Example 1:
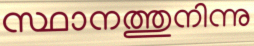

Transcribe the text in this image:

സ്ഥാനത്തുനിന്നു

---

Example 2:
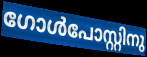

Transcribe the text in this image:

ഗോൾപോസ്റ്റിനു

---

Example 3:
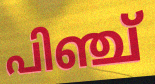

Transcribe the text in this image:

പിഞ്ച്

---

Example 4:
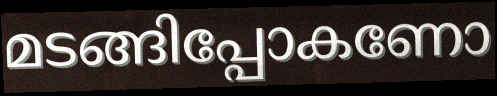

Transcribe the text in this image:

മടങ്ങിപ്പോകണോ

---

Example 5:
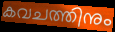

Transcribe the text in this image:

കവചത്തിനും